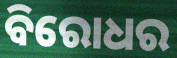
ବିରୋଧର